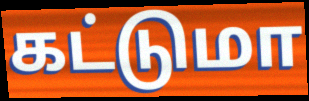
கட்டுமா